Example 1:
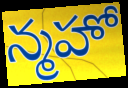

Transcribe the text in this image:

న్మహో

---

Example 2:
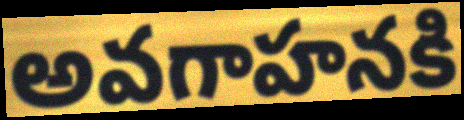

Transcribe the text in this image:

అవగాహనకి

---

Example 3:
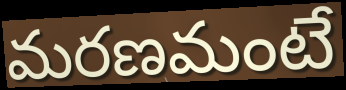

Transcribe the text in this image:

మరణమంటే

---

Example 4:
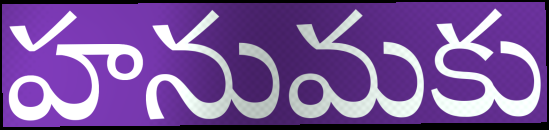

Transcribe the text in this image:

హనుమకు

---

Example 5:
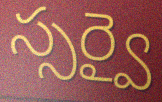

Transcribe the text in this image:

స్సర్వై